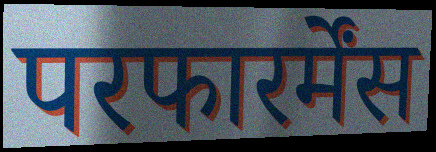
परफारर्मेंस